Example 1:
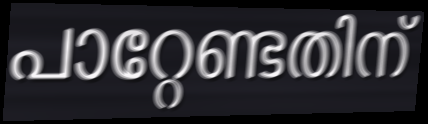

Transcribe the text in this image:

പാറ്റേണ്ടതിന്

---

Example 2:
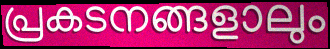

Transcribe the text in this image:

പ്രകടനങ്ങളാലും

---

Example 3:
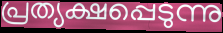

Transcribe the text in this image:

പ്രത്യക്ഷപ്പെടുന്നു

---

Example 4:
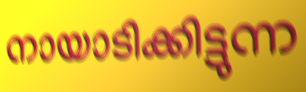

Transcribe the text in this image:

നായാടിക്കിട്ടുന്ന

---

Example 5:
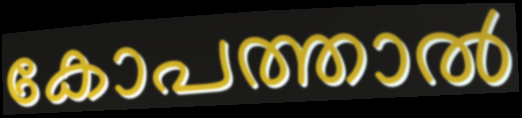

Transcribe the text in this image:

കോപത്താൽ